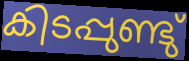
കിടപ്പുണ്ടു്